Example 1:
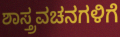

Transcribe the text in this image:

ಶಾಸ್ತ್ರವಚನಗಳಿಗೆ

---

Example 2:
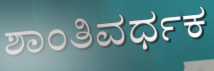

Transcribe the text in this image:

ಶಾಂತಿವರ್ಧಕ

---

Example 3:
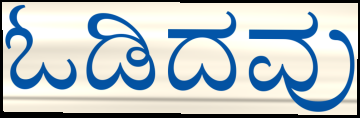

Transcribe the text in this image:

ಓಡಿದವು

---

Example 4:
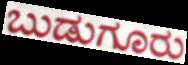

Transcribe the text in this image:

ಬುಡುಗೂರು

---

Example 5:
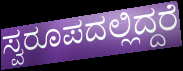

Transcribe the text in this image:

ಸ್ವರೂಪದಲ್ಲಿದ್ದರೆ